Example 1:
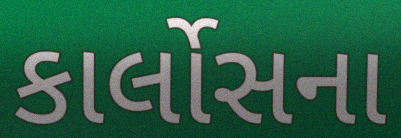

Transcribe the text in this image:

કાર્લોસના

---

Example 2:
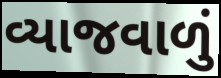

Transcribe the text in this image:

વ્યાજવાળું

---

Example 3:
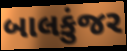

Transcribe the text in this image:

બાલકુંજર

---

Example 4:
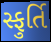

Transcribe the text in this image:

સ્ફુર્તિ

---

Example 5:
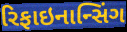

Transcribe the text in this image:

રિફાઇનાન્સિંગ